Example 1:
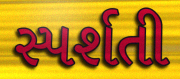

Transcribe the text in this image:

સ્પર્શતી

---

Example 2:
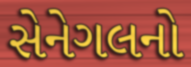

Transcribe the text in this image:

સેનેગલનો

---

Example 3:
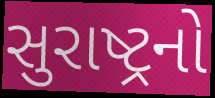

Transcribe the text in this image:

સુરાષ્ટ્રનો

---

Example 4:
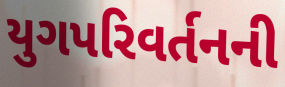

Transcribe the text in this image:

યુગપરિવર્તનની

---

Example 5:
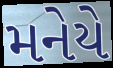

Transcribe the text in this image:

મનેયે